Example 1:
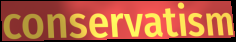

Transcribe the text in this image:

conservatism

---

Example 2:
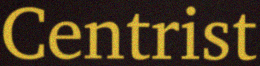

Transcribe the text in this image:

Centrist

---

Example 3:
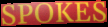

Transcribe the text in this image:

SPOKES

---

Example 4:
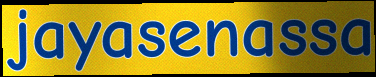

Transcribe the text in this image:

jayasenassa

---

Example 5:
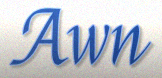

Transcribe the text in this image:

Awn